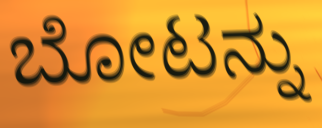
ಬೋಟನ್ನು